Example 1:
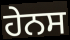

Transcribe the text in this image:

ਹੇਨਸ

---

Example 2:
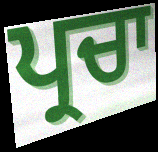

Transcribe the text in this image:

ਪ੍ਰਚਾ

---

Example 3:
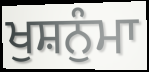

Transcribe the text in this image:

ਖੁਸ਼ਨੁੰਮਾ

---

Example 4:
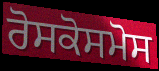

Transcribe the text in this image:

ਰੋਸਕੋਸਮੋਸ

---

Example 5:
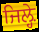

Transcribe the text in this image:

ਜਿਲ਼੍ਹੇ